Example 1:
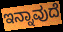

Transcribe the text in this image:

ಇನ್ನಾವುದೆ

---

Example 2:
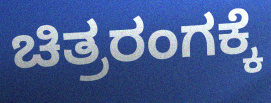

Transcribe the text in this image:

ಚಿತ್ರರಂಗಕ್ಕೆ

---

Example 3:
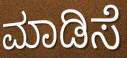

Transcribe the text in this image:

ಮಾಡಿಸೆ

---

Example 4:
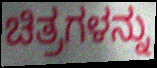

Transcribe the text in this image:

ಚಿತ್ರಗಳನ್ನು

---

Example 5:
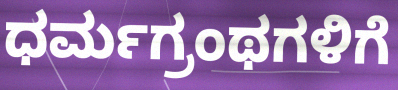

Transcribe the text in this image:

ಧರ್ಮಗ್ರಂಥಗಳಿಗೆ